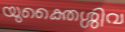
യുക്തൈശ്ശിവ